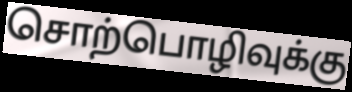
சொற்பொழிவுக்கு